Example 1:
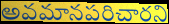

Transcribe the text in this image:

అవమానపరిచారని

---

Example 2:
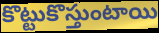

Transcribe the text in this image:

కొట్టుకొస్తుంటాయి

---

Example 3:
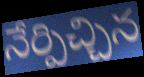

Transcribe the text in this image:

నేర్పిచ్చిన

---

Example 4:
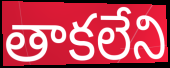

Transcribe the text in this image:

తాకలేని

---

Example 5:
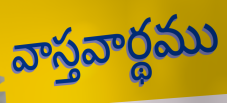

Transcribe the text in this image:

వాస్తవార్థము